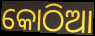
କୋଠିଆ